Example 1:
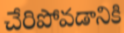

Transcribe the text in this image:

చేరిపోవడానికి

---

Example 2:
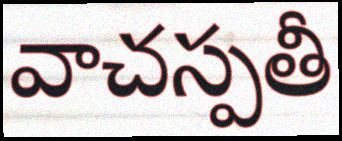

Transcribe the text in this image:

వాచస్పతీ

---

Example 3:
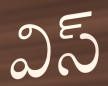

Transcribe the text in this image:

విస్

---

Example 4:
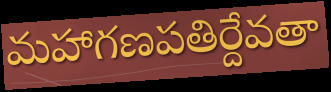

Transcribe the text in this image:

మహాగణపతిర్దేవతా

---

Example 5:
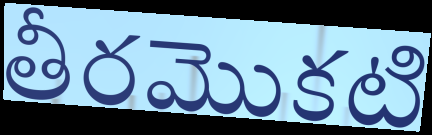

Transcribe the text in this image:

తీరమొకటి